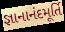
જ્ઞાનાનંદમૂર્તિ